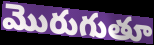
మొరుగుతూ